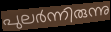
പുലർന്നിരുന്നു